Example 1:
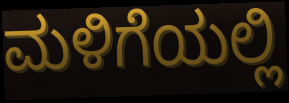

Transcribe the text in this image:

ಮಳಿಗೆಯಲ್ಲಿ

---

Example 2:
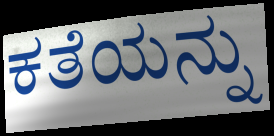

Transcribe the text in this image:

ಕತೆಯನ್ನು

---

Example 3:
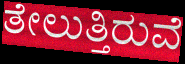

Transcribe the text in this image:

ತೇಲುತ್ತಿರುವೆ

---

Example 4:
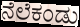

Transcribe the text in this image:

ನೆಲೆಕಂಡು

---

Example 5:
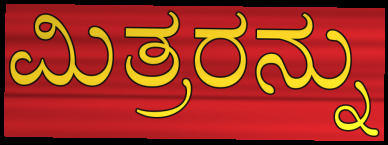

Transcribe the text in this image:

ಮಿತ್ರರನ್ನು